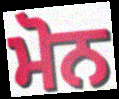
ਮੋਨ